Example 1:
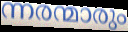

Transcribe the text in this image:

ന്നരന്മാരും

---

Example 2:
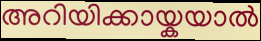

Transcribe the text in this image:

അറിയിക്കായ്കയാൽ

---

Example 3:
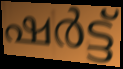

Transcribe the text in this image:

ഷർട്ട്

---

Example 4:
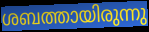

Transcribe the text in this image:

ശബത്തായിരുന്നു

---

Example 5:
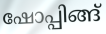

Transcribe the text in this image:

ഷോപ്പിങ്ങ്